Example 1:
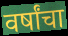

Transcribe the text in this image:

वर्षांचा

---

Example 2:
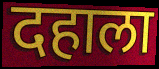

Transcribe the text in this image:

दहाला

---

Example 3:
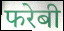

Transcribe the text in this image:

फरेबी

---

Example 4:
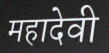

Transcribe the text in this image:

महादेवी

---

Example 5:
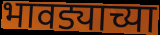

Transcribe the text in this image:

भावड्याच्या